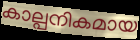
കാല്പനികമായ